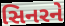
સિનરને